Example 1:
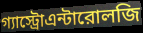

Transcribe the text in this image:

গ্যাস্ট্রোএন্টারোলজি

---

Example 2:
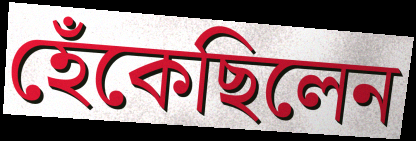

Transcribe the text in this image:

হেঁকেছিলেন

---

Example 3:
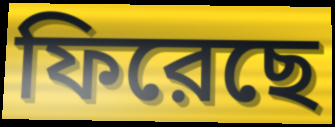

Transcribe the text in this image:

ফিরেছে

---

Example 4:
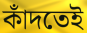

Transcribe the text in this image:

কাঁদতেই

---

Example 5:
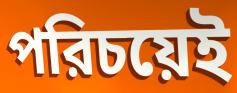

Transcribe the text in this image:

পরিচয়েই